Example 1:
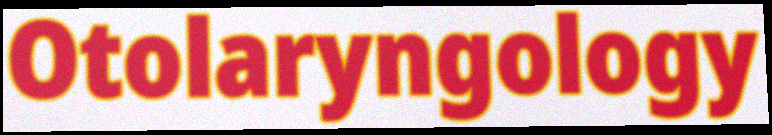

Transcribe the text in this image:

Otolaryngology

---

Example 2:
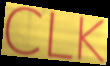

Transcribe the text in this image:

CLK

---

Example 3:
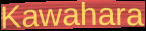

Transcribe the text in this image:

Kawahara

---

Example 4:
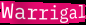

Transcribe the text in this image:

Warrigal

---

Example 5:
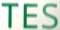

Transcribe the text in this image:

TES